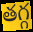
తగ్గ